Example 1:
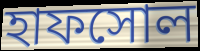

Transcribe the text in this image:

হাফসোল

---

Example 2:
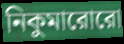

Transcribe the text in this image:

নিকুমারোরো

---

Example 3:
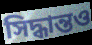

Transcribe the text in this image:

সিদ্ধান্তও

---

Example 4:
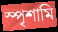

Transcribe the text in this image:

স্পৃশামি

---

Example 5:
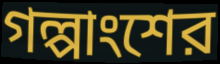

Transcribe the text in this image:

গল্পাংশের